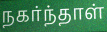
நகர்ந்தாள்